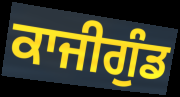
ਕਾਜੀਗੁੰਡ